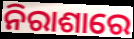
ନିରାଶାରେ